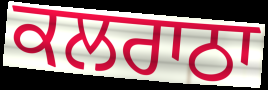
ਕਲਰਾਠਾ